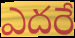
ఎదరే